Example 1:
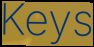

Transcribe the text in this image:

Keys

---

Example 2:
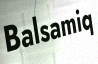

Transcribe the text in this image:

Balsamiq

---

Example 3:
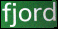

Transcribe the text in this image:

fjord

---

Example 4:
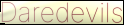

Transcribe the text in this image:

Daredevils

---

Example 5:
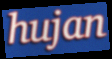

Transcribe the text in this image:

hujan